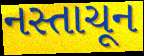
નસ્તાચૂન